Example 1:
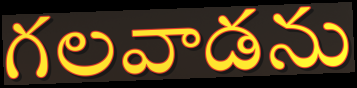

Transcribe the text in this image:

గలవాడను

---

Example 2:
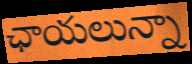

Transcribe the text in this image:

ఛాయలున్నా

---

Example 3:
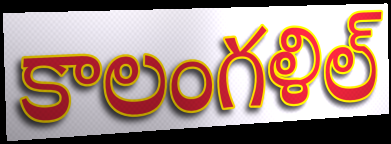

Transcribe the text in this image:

కాలంగళిల్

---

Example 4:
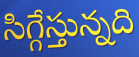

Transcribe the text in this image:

సిగ్గేస్తున్నది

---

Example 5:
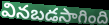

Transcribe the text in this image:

వినబడసాగింది